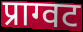
प्राग्वट